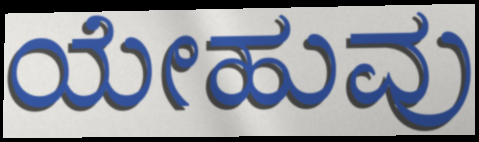
ಯೇಹುವು